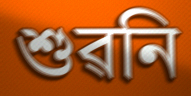
শুৱনি